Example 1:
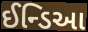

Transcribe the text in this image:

ઈન્ડિઆ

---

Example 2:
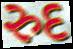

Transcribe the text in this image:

રુદ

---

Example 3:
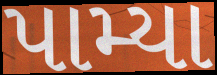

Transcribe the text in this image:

પામ્યા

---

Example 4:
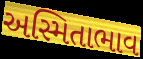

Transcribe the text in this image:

અસ્મિતાભાવ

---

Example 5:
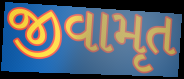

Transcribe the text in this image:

જીવામૃત